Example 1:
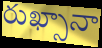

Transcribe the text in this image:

రుఖ్సానా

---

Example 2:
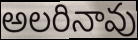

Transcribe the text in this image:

అలరినావు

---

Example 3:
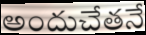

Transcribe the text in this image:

అందుచేతనే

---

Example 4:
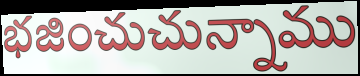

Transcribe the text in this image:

భజించుచున్నాము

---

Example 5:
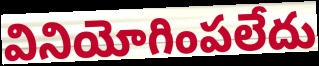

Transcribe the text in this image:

వినియోగింపలేదు